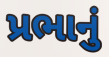
પ્રભાનું